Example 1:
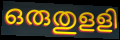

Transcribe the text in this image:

ഒരുതുളളി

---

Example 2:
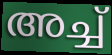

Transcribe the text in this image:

അച്ച്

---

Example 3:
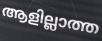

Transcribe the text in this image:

ആളില്ലാത്ത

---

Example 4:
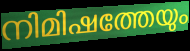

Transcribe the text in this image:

നിമിഷത്തേയും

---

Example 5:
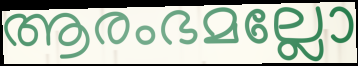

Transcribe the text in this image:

ആരംഭമല്ലോ